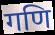
गणि